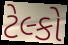
ટેલ્કો